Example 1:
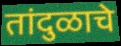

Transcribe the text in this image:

तांदुळाचे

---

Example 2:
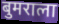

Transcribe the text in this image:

बुमराला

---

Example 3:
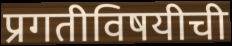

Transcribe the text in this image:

प्रगतीविषयीची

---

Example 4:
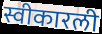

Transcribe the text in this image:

स्वीकारली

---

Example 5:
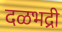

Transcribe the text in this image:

दळभद्री